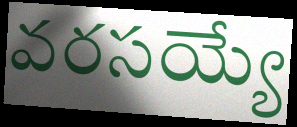
వరసయ్యే